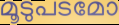
മൂടുപടമോ